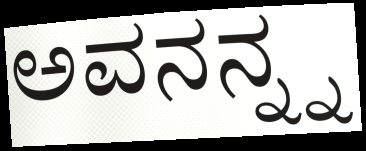
ಅವನನ್ನ್ನ